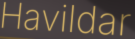
Havildar